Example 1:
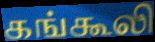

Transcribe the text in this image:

கங்கூலி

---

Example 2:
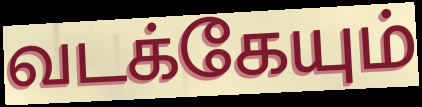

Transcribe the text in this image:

வடக்கேயும்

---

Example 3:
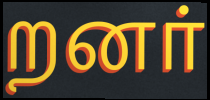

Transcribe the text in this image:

றனர்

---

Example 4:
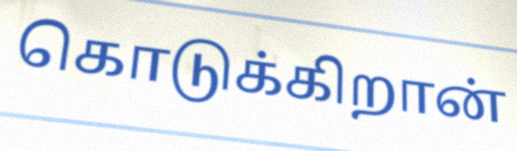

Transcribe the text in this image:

கொடுக்கிறான்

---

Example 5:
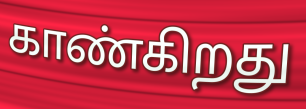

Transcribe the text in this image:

காண்கிறது